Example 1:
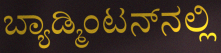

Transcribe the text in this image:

ಬ್ಯಾಡ್ಮಿಂಟನ್‌ನಲ್ಲಿ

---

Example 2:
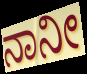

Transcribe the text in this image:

ನಾನೀ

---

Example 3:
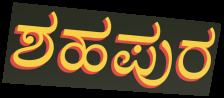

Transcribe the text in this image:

ಶಹಪುರ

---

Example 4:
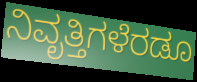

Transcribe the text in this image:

ನಿವೃತ್ತಿಗಳೆರಡೂ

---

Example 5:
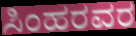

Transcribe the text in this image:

ಸಿಂಹರವರ